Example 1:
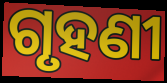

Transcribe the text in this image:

ଗୃହଣୀ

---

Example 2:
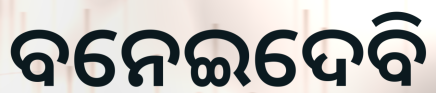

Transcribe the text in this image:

ବନେଇଦେବି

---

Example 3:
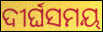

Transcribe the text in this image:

ଦୀର୍ଘସମୟ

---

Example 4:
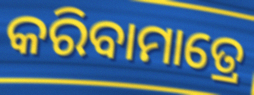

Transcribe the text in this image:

କରିବାମାତ୍ରେ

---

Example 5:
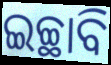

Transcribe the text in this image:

ଇଚ୍ଛାବି